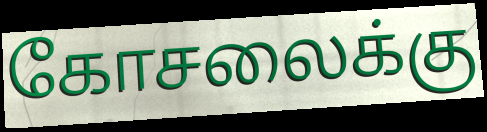
கோசலைக்கு